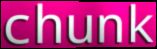
chunk